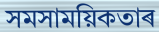
সমসাময়িকতাৰ